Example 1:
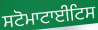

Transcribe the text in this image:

ਸਟੋਮਾਟਾਈਟਿਸ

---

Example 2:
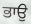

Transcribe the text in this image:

ਭਾਉ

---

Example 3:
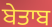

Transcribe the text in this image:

ਬੇਤਾਬ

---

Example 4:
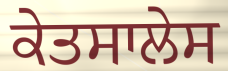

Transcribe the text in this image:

ਕੇਤਸਾਲੇਸ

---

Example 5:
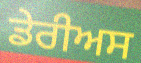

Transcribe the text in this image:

ਡੇਰੀਅਸ